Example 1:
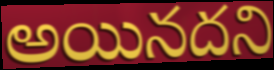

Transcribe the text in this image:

అయినదని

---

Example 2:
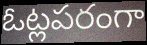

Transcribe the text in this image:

ఓట్లపరంగా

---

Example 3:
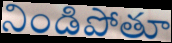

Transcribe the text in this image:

నిండిపోతూ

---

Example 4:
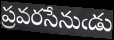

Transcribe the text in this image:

ప్రవరసేనుఁడు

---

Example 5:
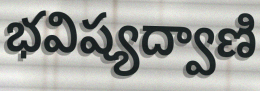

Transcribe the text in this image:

భవిష్యద్వాణి